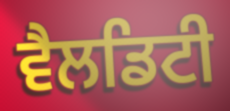
ਵੈਲਡਿਟੀ